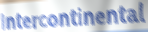
Intercontinental